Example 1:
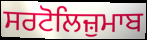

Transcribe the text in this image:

ਸਰਟੋਲਿਜ਼ੁਮਾਬ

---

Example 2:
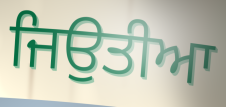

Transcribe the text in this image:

ਜਿਉਤੀਆ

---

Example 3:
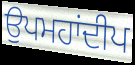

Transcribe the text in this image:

ਉਪਮਹਾਂਦੀਪ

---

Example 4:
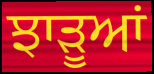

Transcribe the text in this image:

ਝਾੜੂਆਂ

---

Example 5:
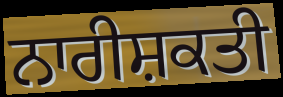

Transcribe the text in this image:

ਨਾਰੀਸ਼ਕਤੀ